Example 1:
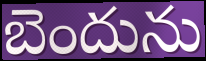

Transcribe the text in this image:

బెందును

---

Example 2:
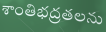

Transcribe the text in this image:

శాంతిభద్రతలను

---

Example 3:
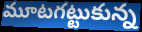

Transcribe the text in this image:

మూటగట్టుకున్న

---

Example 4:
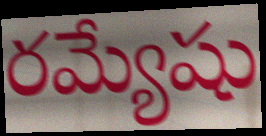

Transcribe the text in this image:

రమ్యేషు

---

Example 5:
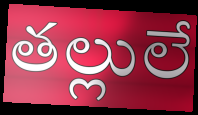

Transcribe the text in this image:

తల్లులే